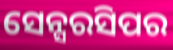
ସେନ୍ସରସିପର